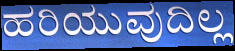
ಹರಿಯುವುದಿಲ್ಲ